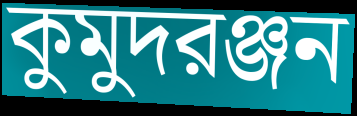
কুমুদরঞ্জন